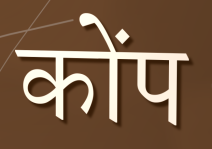
कोंप